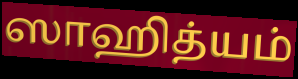
ஸாஹித்யம்